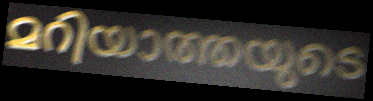
മറിയാത്തയുടെ